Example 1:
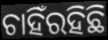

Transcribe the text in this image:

ଚାହିଁରହିଛି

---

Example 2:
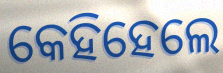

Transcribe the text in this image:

କେହିହେଲେ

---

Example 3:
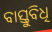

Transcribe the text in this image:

ବାସ୍ତୁବିଧି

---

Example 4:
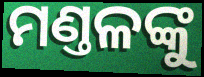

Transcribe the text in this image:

ମଣ୍ତଳଙ୍କୁ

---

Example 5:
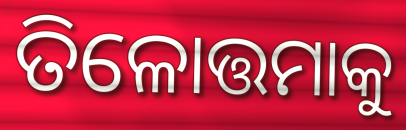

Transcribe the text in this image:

ତିଳୋତ୍ତମାକୁ